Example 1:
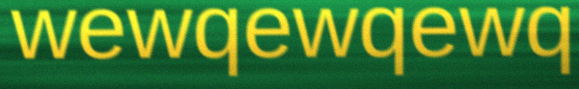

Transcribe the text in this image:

wewqewqewq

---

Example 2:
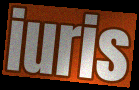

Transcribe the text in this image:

iuris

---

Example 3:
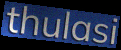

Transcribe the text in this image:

thulasi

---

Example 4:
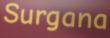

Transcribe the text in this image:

Surgana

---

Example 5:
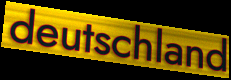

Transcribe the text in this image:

deutschland